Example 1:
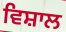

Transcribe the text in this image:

ਵਿਸ਼ਾਲ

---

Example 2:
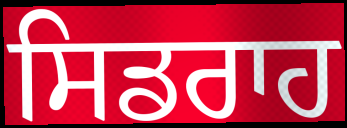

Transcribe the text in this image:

ਸਿਡਰਾਹ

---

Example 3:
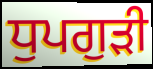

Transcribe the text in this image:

ਧੁਪਗੁੜੀ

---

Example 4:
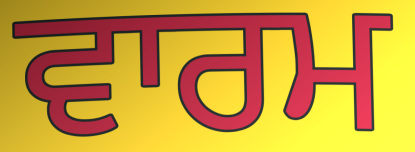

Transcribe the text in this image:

ਵਾਰਮ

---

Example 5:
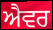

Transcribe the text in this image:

ਐਵਰ